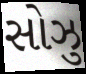
સોઝુ